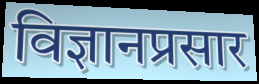
विज्ञानप्रसार